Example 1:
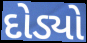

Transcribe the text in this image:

દોડ્યો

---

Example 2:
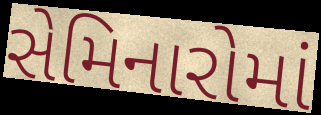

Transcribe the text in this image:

સેમિનારોમાં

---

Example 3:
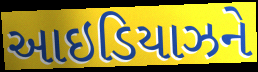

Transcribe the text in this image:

આઇડિયાઝને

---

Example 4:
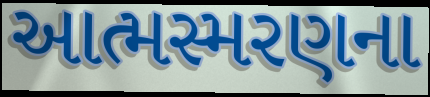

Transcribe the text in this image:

આત્મસ્મરણના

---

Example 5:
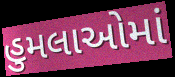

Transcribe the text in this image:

હુમલાઓમાં